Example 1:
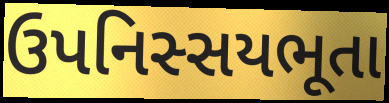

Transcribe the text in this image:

ઉપનિસ્સયભૂતા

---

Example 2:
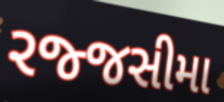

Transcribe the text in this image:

રજ્જસીમા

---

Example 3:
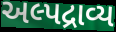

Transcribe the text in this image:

અલ્પદ્રાવ્ય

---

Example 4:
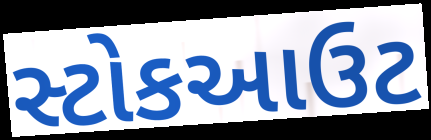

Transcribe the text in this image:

સ્ટોકઆઉટ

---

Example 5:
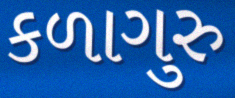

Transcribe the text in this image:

કળાગુરુ